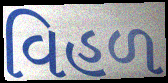
વિહળ